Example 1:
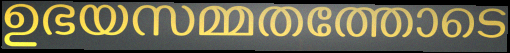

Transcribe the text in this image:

ഉഭയസമ്മതത്തോടെ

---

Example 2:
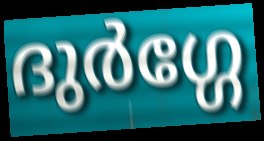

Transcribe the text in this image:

ദുർഗ്ഗേ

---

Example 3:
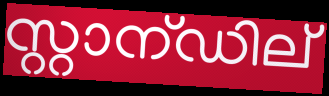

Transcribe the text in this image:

സ്റ്റാന്ഡില്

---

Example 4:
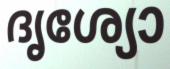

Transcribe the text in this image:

ദൃശ്യോ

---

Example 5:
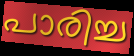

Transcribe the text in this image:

പാരിച്ച